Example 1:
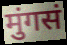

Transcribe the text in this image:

मुंगसं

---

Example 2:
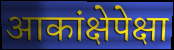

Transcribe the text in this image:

आकांक्षेपेक्षा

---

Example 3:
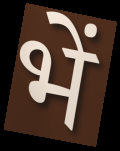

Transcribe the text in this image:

भें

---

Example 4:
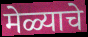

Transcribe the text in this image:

मेळ्याचे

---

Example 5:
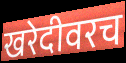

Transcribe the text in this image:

खरेदीवरच